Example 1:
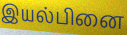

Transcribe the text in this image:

இயல்பினை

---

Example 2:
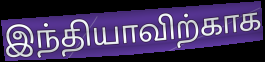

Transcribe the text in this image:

இந்தியாவிற்காக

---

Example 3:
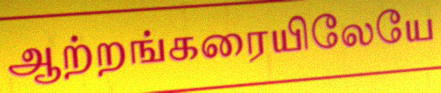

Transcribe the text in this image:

ஆற்றங்கரையிலேயே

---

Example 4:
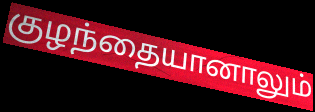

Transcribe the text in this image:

குழந்தையானாலும்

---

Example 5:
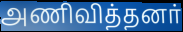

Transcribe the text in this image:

அணிவித்தனர்